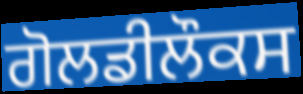
ਗੋਲਡੀਲੌਕਸ